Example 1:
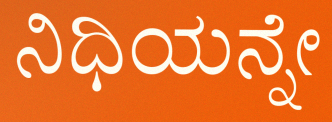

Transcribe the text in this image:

ನಿಧಿಯನ್ನೇ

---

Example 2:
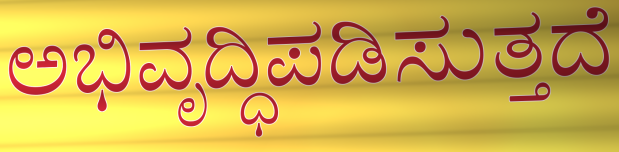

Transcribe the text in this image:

ಅಭಿವೃದ್ಧಿಪಡಿಸುತ್ತದೆ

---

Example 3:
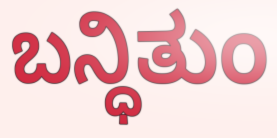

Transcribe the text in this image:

ಬನ್ಧಿತುಂ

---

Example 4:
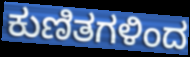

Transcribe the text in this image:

ಕುಣಿತಗಳಿಂದ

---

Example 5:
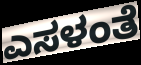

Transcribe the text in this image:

ಎಸಳಂತೆ